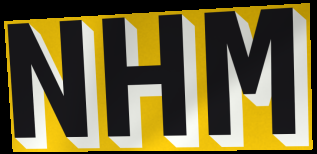
NHM